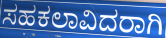
ಸಹಕಲಾವಿದರಾಗಿ